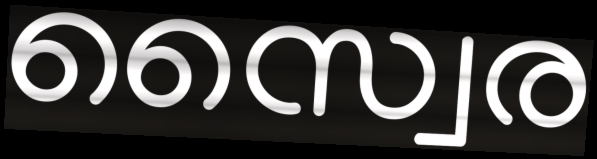
സ്വൈര